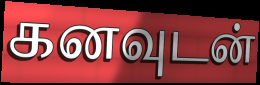
கனவுடன்